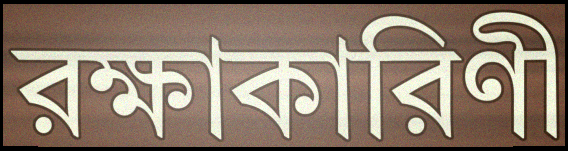
রক্ষাকারিণী